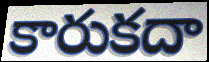
కారుకదా